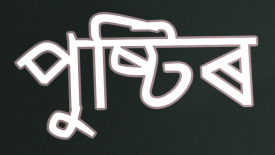
পুষ্টিৰ